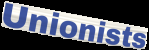
Unionists